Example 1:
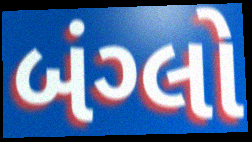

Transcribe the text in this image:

બંગ્લો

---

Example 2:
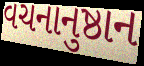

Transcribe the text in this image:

વચનાનુષ્ઠાન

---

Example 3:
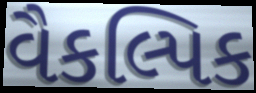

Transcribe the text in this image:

વૈકલ્પિક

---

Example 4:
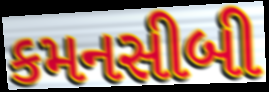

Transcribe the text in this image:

કમનસીબી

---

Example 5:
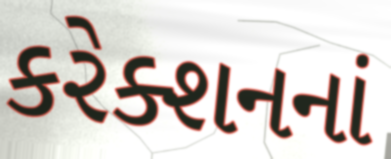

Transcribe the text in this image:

કરેક્શનનાં